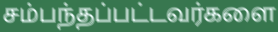
சம்பந்தப்பட்டவர்களை